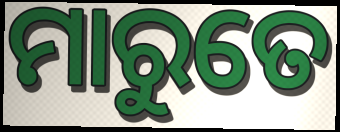
ମାରୁତେ